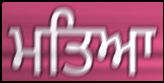
ਮਤਿਆ